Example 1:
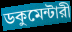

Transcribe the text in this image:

ডকুমেন্টারী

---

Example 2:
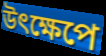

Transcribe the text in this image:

উৎক্ষেপে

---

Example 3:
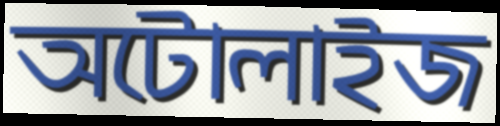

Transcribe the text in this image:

অটোলাইজ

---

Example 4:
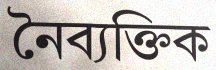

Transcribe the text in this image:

নৈব্যক্তিক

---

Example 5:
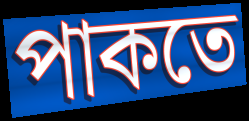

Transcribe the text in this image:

পাকতে